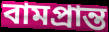
বামপ্রান্ত